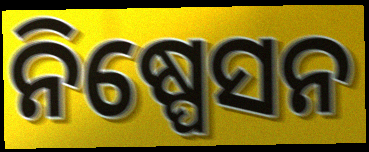
ନିଷ୍ପେସନ